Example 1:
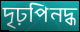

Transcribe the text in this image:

দৃঢ়পিনদ্ধ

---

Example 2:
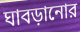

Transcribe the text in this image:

ঘাবড়ানোর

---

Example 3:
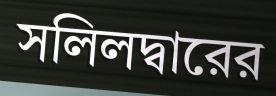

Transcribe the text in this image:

সলিলদ্বারের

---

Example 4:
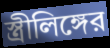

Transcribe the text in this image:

স্ত্রীলিঙ্গের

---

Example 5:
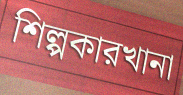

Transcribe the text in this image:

শিল্পকারখানা